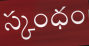
స్కంధం